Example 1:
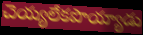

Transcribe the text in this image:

చెయ్యలేకపొయ్యాడు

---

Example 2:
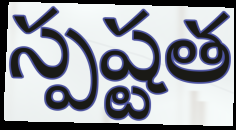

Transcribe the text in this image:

స్పష్టత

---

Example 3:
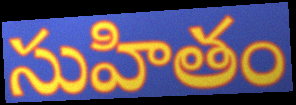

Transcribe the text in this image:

సుహితం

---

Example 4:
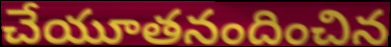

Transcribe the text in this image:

చేయూతనందించిన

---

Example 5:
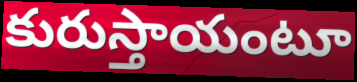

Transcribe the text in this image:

కురుస్తాయంటూ